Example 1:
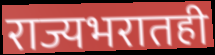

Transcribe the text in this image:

राज्यभरातही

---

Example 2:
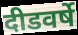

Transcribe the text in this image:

दीडवर्षे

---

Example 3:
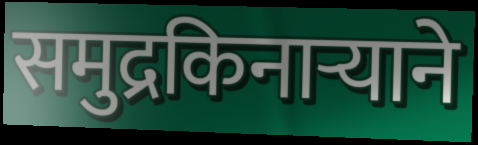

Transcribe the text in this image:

समुद्रकिनाऱ्याने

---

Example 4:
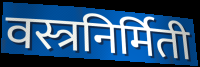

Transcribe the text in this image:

वस्त्रनिर्मिती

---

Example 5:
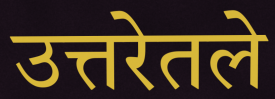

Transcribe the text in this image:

उत्तरेतले